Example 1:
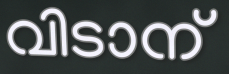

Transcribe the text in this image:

വിടാന്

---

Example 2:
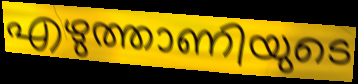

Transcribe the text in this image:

എഴുത്താണിയുടെ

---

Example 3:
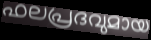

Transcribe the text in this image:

ഫലപ്രദവുമായ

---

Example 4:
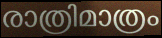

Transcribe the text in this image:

രാത്രിമാത്രം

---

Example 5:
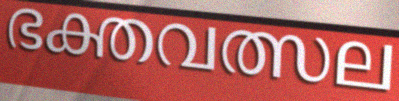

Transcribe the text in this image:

ഭക്തവത്സല